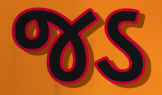
જડ